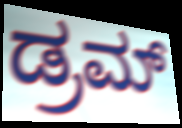
ಡ್ರಮ್